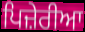
ਪਿਜ਼ੇਰੀਆ